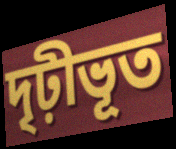
দৃঢ়ীভূত